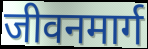
जीवनमार्ग